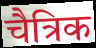
चैत्रिक